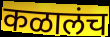
कळालंच